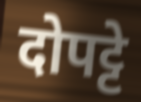
दोपट्टे